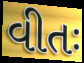
વીતઃ